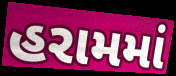
હરામમાં